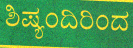
ಶಿಷ್ಯಂದಿರಿಂದ